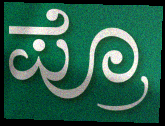
ಪ್ರೊ